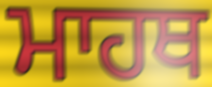
ਮਾਹਥ